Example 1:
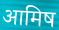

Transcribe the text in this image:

आमिष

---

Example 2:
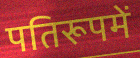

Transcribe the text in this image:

पतिरूपमें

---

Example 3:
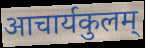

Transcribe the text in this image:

आचार्यकुलम्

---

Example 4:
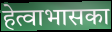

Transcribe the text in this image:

हेत्वाभासका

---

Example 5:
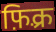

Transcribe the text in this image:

फ़िक़्र